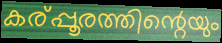
കര്പ്പൂരത്തിന്റെയും